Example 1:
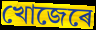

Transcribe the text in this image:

খোজেৰে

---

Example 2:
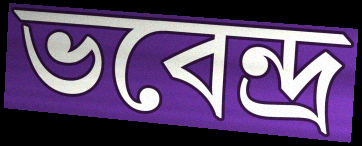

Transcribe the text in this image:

ভবেন্দ্ৰ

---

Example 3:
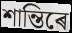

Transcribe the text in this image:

শান্তিৰে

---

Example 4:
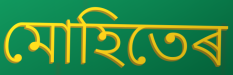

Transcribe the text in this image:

মোহিতেৰ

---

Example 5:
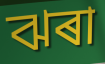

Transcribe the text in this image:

ঝৰা